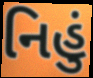
નિહું